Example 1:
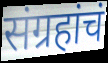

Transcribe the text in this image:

संग्रहांचं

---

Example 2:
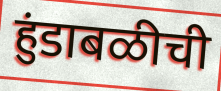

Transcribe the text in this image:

हुंडाबळीची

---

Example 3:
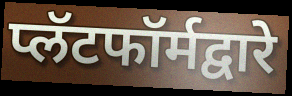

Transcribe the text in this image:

प्लॅटफॉर्मद्वारे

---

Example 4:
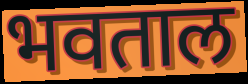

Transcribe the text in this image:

भवताल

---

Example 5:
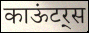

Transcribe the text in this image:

काऊंटर्स